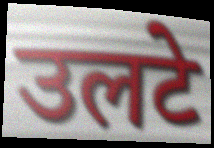
उलटे